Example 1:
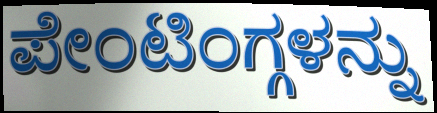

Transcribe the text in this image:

ಪೇಂಟಿಂಗ್ಗಳನ್ನು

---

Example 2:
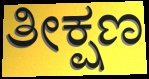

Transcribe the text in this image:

ತೀಕ್ಷಣ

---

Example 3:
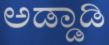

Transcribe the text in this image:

ಅಡ್ಡಾಡಿ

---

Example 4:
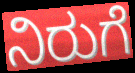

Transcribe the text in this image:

ನಿರುಗೆ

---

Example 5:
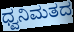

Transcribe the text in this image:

ಧ್ವನಿಮತದ